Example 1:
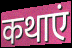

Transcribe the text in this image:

कथाएं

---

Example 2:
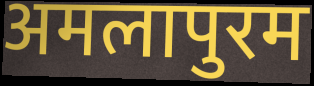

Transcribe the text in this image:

अमलापुरम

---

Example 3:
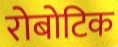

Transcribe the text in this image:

रोबोटिक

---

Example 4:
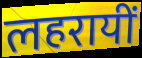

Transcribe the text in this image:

लहरायीं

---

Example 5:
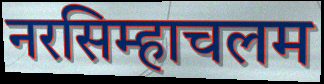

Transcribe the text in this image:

नरसिम्हाचलम